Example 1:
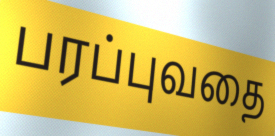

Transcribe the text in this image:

பரப்புவதை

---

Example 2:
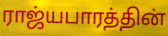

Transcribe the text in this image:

ராஜ்யபாரத்தின்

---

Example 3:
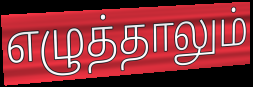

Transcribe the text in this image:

எழுத்தாலும்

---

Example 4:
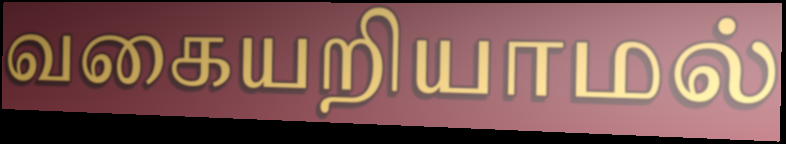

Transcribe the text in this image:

வகையறியாமல்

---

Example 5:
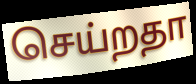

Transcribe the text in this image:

செய்றதா